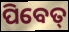
ପିବେତ୍